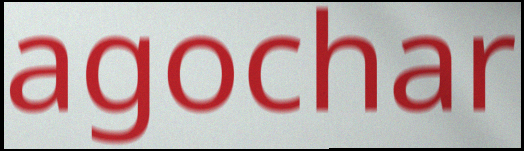
agochar